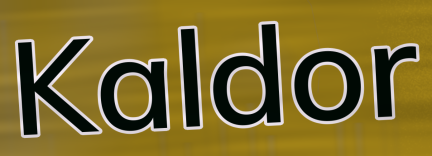
Kaldor